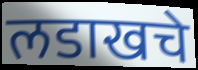
लडाखचे